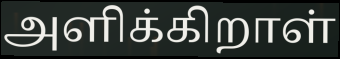
அளிக்கிறாள்